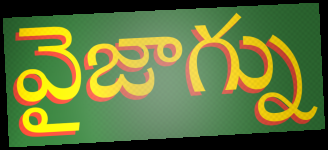
వైజాగ్ను